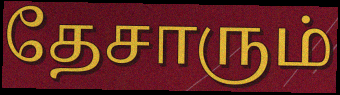
தேசாரும்